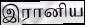
இரானிய